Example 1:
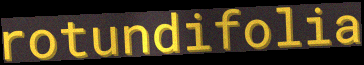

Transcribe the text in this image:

rotundifolia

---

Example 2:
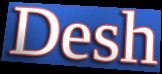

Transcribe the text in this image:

Desh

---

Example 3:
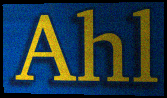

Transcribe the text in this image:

Ahl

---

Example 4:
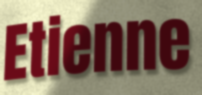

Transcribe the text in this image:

Etienne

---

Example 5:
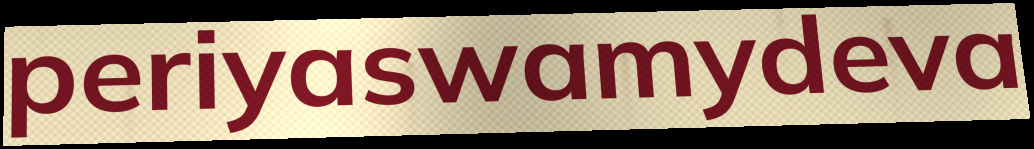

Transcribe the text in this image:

periyaswamydeva